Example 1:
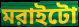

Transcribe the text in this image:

মরাইটো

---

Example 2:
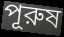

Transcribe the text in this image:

পূরুষ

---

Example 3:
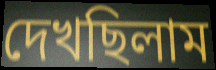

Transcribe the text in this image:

দেখছিলাম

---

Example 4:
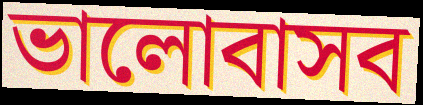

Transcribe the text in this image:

ভালোবাসব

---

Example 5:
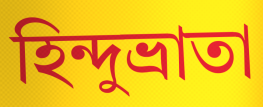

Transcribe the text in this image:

হিন্দুভ্রাতা